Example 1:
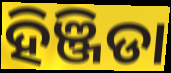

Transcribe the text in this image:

ହିଞ୍ଜିଡା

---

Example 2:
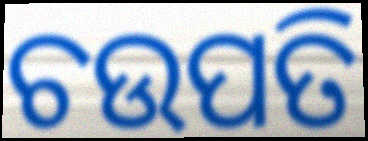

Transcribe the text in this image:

ଚଉପତି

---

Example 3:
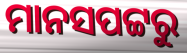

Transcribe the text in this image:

ମାନସପଟ୍ଟରୁ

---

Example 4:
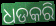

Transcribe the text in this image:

ଧଡକରି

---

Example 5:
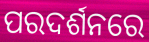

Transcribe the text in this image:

ପରଦର୍ଶନରେ